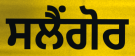
ਸਲੈਂਗੋਰ